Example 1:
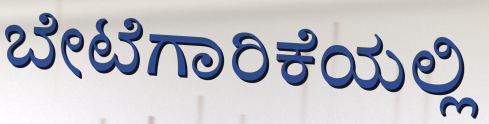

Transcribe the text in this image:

ಬೇಟೆಗಾರಿಕೆಯಲ್ಲಿ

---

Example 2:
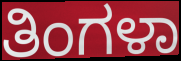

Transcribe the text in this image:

ತಿಂಗಳಾ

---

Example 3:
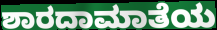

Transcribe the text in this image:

ಶಾರದಾಮಾತೆಯ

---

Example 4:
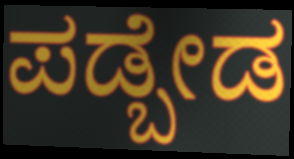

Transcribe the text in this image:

ಪಡ್ಬೇಡ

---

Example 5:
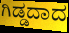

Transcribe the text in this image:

ಗಿಡ್ಡದಾದ